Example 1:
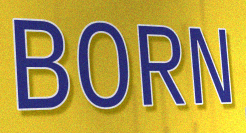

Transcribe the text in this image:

BORN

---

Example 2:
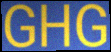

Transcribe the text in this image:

GHG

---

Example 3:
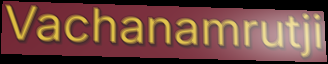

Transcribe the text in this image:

Vachanamrutji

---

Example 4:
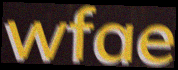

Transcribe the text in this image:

wfae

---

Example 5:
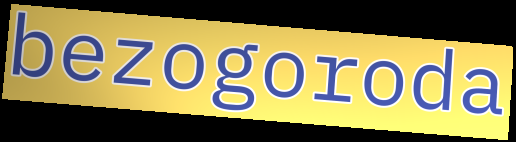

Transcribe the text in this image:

bezogoroda